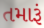
તમારૂં